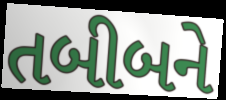
તબીબને